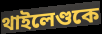
থাইলেণ্ডকে